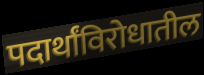
पदार्थांविरोधातील